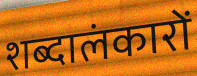
शब्दालंकारों